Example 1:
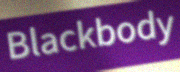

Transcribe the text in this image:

Blackbody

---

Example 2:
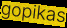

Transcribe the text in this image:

gopikas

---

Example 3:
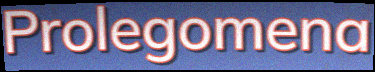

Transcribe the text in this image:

Prolegomena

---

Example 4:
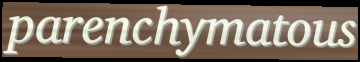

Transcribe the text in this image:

parenchymatous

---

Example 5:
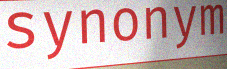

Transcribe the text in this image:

synonym